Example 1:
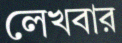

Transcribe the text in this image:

লেখবার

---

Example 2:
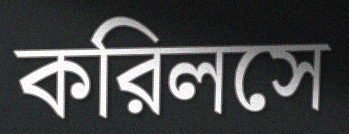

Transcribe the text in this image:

করিলসে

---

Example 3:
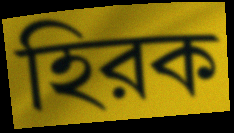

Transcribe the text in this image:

হিরক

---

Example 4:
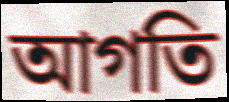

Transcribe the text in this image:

আগতি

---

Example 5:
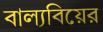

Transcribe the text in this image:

বাল্যবিয়ের